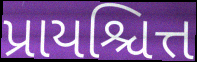
પ્રાયશ્ચિત્ત